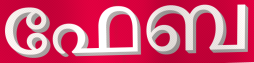
ഫേബ